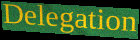
Delegation